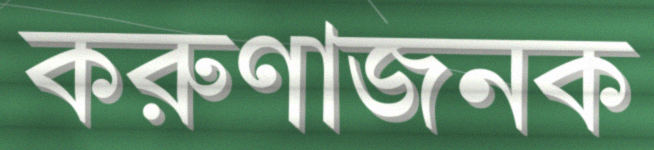
করুণাজনক